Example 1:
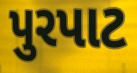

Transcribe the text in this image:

પુરપાટ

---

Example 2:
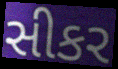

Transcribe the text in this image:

સીકર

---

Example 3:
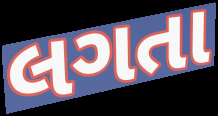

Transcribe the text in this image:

લગતા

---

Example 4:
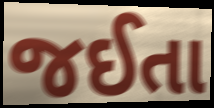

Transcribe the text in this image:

જઈતા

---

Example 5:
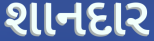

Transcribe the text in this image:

શાનદાર